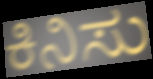
ಕಿನಿಸು